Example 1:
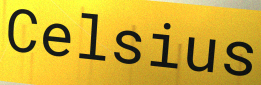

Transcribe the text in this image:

Celsius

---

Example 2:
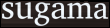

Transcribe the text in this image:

sugama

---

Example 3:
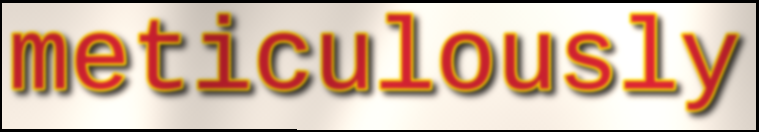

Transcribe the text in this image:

meticulously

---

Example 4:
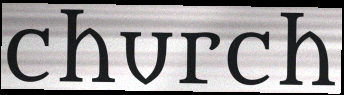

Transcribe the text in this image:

church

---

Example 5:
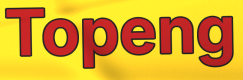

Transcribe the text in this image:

Topeng